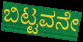
ಬಿಟ್ಟವನೇ